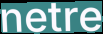
netre